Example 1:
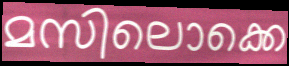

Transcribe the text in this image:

മസിലൊക്കെ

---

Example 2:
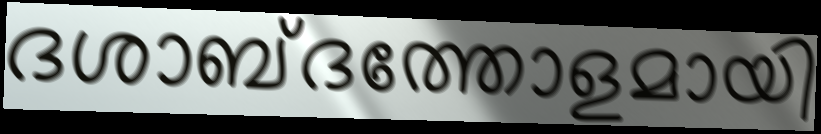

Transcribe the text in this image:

ദശാബ്ദത്തോളമായി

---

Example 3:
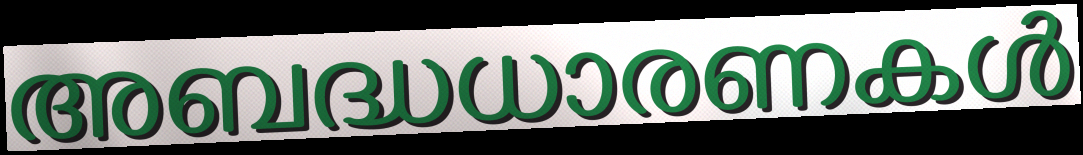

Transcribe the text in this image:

അബദ്ധധാരണകൾ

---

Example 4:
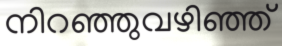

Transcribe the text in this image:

നിറഞ്ഞുവഴിഞ്ഞ്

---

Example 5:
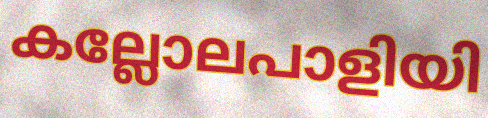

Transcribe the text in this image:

കല്ലോലപാളിയി